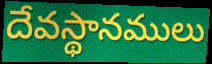
దేవస్థానములు